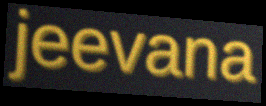
jeevana